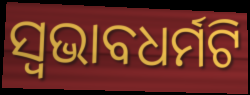
ସ୍ଵଭାବଧର୍ମଟି